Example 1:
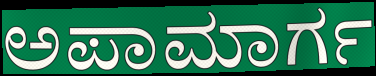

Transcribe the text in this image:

ಅಪಾಮಾರ್ಗ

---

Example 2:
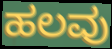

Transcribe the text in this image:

ಹಲವು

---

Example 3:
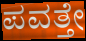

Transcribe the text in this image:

ಪವತ್ತೇ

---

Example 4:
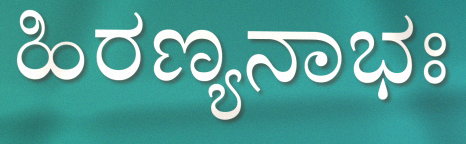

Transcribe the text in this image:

ಹಿರಣ್ಯನಾಭಃ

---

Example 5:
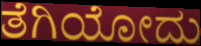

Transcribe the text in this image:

ತೆಗಿಯೋದು